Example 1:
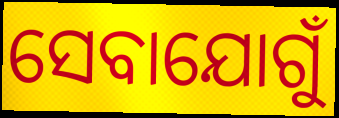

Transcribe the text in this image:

ସେବାଯୋଗୁଁ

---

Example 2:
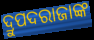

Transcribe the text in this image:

ଦ୍ରୁପଦରାଜାଙ୍କ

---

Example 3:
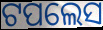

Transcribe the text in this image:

ଟପଲେସ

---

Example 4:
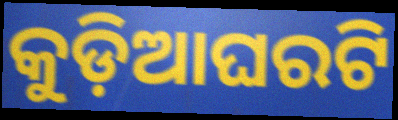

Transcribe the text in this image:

କୁଡ଼ିଆଘରଟି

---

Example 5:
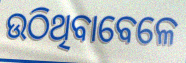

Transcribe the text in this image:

ଉଠିଥିବାବେଳେ